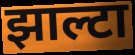
झाल्टा